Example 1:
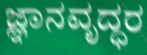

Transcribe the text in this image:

ಜ್ಞಾನವೃದ್ಧರ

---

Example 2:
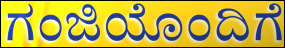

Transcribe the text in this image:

ಗಂಜಿಯೊಂದಿಗೆ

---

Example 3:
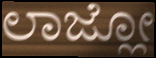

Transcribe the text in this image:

ಲಾಜ್ಲೋ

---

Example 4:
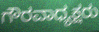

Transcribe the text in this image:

ಗೌರವಾಧ್ಯಕ್ಷರು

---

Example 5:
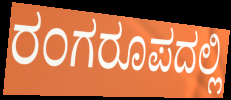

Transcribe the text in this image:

ರಂಗರೂಪದಲ್ಲಿ